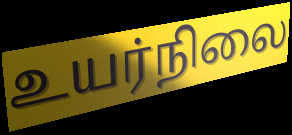
உயர்நிலை